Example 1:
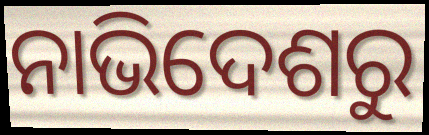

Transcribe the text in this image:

ନାଭିଦେଶରୁ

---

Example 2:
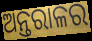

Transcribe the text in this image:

ଅନ୍ତରାଳର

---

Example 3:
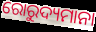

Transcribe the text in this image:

ରୋରୁଦ୍ୟମାନା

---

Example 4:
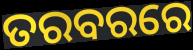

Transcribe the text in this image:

ତରବରରେ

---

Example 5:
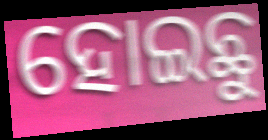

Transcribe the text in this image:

ହୋଇଛୁ